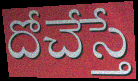
దోచేస్తే